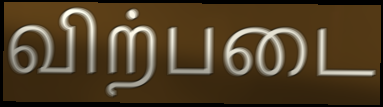
விற்படை